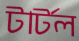
টার্টল